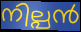
നില്പൻ